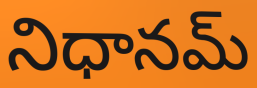
నిధానమ్